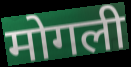
मोगली